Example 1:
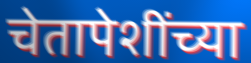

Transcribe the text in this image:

चेतापेशींच्या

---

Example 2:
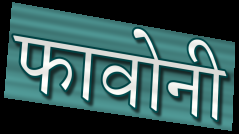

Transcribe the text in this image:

फावोनी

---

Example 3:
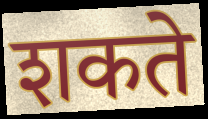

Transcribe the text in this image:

शकते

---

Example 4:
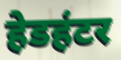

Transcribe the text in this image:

हेडहंटर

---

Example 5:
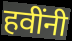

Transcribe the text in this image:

हवींनी